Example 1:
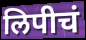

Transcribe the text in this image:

लिपीचं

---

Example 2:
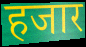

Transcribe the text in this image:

हजार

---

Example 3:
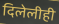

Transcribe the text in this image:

दिलेलीही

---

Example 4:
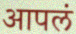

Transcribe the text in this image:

आपलं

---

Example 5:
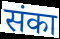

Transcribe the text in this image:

संका